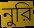
নুরি